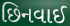
છિનવાઈ